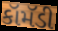
કૉમૅડી